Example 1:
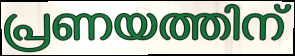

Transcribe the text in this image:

പ്രണയത്തിന്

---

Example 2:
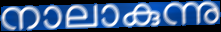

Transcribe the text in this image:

നാലാകുന്നു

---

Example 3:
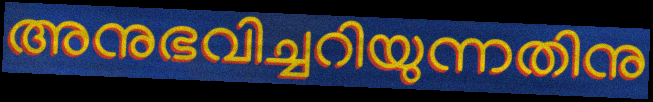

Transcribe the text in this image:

അനുഭവിച്ചറിയുന്നതിനു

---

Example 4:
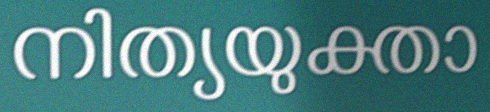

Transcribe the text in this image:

നിത്യയുക്താ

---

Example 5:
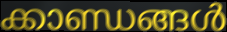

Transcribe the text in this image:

ക്കാണ്ഡങ്ങൾ